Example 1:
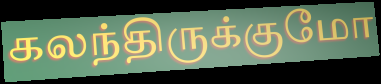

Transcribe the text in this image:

கலந்திருக்குமோ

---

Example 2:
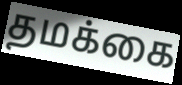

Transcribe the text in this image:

தமக்கை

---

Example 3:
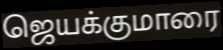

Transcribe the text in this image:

ஜெயக்குமாரை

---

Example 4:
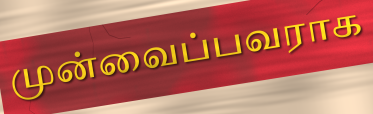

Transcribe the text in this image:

முன்வைப்பவராக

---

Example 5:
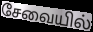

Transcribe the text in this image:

சேவையில்